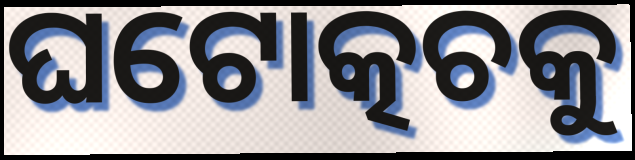
ଘଟୋତ୍କଚକୁ